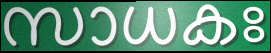
സാധകഃ